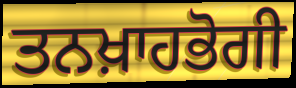
ਤਨਖ਼ਾਹਭੋਗੀ